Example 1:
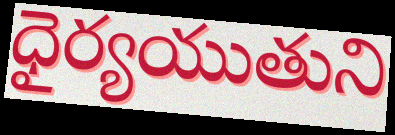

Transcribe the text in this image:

ధైర్యయుతుని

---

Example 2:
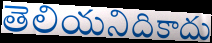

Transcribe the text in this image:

తెలియనిదికాదు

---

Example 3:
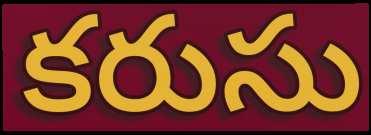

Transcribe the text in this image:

కరుసు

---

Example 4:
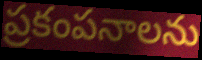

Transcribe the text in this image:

ప్రకంపనాలను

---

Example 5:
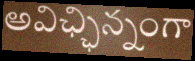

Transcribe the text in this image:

అవిఛ్ఛిన్నంగా